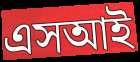
এসআই